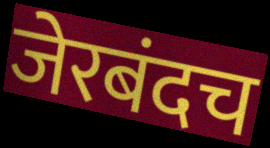
जेरबंदच